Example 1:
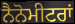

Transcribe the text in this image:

ਨੈਨੋਮੀਟਰਾਂ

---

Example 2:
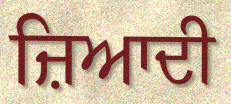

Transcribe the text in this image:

ਜ਼ਿਆਦੀ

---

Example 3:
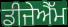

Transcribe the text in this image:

ਡੀਜੇਐੱਮ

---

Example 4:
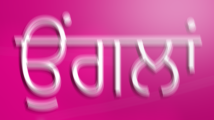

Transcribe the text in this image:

ਉੰਗਲਾਂ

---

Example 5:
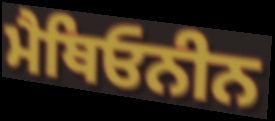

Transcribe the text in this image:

ਮੈਥਿਓਨੀਨ